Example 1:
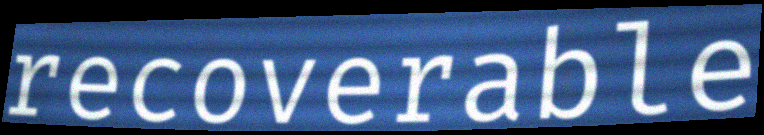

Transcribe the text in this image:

recoverable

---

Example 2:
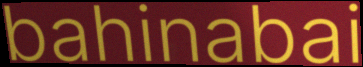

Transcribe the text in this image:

bahinabai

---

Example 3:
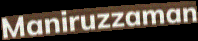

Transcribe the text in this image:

Maniruzzaman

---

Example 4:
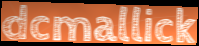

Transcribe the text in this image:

dcmallick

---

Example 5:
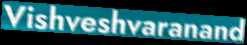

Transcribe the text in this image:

Vishveshvaranand